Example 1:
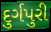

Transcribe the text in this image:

દુર્ગપુરી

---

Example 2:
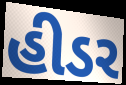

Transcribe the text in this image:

હીડર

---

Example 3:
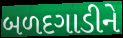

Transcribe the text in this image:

બળદગાડીને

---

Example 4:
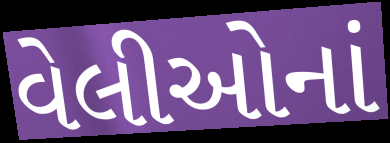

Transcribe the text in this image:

વેલીઓનાં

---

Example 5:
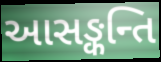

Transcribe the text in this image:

આસઙ્કન્તિ